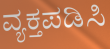
ವ್ಯಕ್ತಪಡಿಸಿ